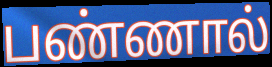
பண்ணால்